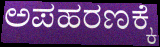
ಅಪಹರಣಕ್ಕೆ